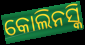
କୋଲିନସ୍କି